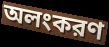
অলংকরণ